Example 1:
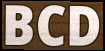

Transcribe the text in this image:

BCD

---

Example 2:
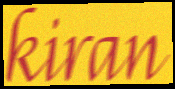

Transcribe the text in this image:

kiran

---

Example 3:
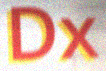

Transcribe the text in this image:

Dx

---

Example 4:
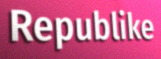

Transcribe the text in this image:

Republike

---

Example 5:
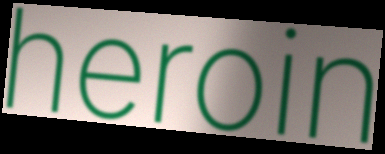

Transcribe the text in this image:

heroin